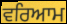
ਵਰਿਆਮ